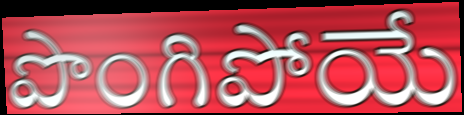
పొంగిపోయే